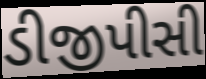
ડીજીપીસી